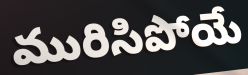
మురిసిపోయే